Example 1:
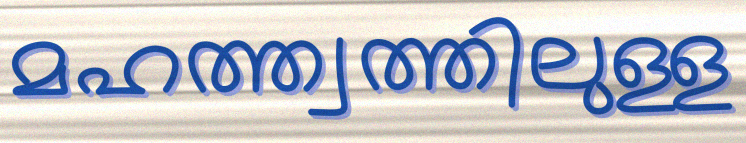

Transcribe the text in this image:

മഹത്ത്വത്തിലുള്ള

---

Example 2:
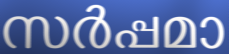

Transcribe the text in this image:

സർപ്പമാ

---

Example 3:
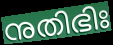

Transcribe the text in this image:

നുതിഭിഃ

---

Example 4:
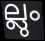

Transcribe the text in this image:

ല്ലും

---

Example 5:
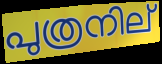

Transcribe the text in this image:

പുത്രനില്